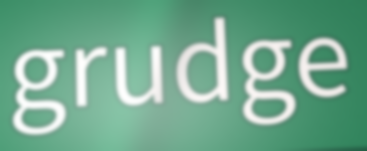
grudge